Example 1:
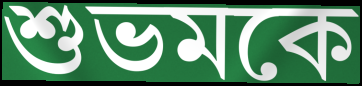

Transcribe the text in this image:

শুভমকে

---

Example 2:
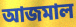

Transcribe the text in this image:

আজমাল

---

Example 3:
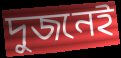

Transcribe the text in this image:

দুজনেই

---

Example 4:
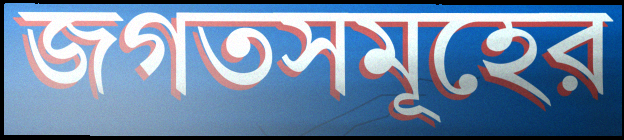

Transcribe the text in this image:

জগতসমূহের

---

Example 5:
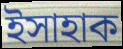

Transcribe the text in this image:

ইসাহাক